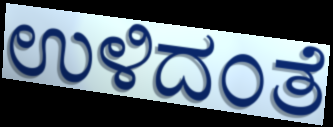
ಉಳಿದಂತೆ